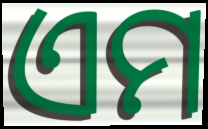
ଏମ